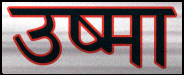
उष्मा